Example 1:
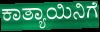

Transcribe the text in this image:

ಕಾತ್ಯಾಯಿನಿಗೆ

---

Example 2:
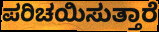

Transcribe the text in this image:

ಪರಿಚಯಿಸುತ್ತಾರೆ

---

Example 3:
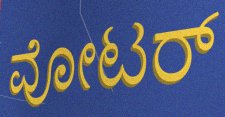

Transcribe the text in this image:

ವೋಟರ್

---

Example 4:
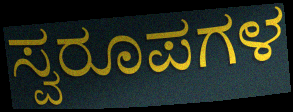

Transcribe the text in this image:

ಸ್ವರೂಪಗಳ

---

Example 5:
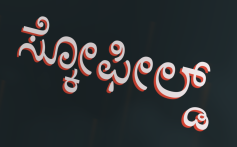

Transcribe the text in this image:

ಸ್ಕೋಫೀಲ್ಡ್